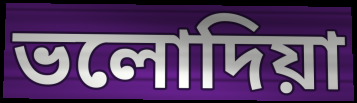
ভলোদিয়া